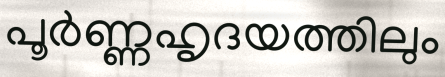
പൂർണ്ണഹൃദയത്തിലും